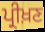
ਪ੍ਰੀਖ਼ਣ